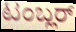
ಟಂಬ್ಲರ್